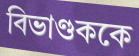
বিভাণ্ডককে